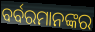
ବର୍ବରମାନଙ୍କର